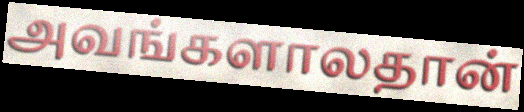
அவங்களாலதான்